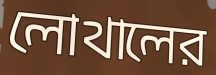
লোথালের